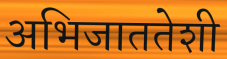
अभिजाततेशी